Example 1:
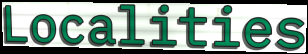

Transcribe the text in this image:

Localities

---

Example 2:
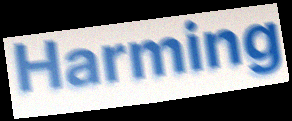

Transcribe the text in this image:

Harming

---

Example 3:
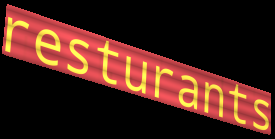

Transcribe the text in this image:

resturants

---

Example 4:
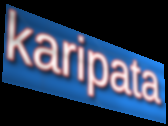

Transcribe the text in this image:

karipata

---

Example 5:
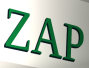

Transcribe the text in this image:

ZAP